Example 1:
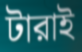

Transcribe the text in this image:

টারাই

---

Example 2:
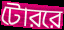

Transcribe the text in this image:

টোররে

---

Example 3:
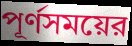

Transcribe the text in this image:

পূর্ণসময়ের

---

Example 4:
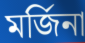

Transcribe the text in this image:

মর্জিনা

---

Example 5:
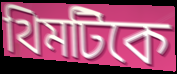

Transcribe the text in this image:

থিমটিকে